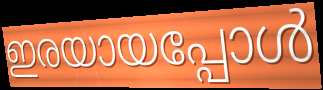
ഇരയായപ്പോൾ